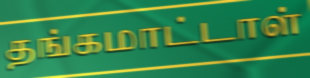
தங்கமாட்டாள்